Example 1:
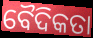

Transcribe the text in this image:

ବୈଦିକତା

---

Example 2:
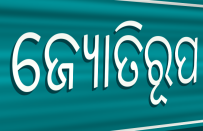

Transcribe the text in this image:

ଜ୍ୟୋତିରୂପ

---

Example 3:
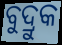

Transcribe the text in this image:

ବୁଦ୍ରୁକ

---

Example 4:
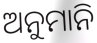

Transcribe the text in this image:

ଅନୁମାନି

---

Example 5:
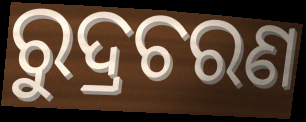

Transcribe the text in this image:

ରୁଦ୍ରଚରଣ